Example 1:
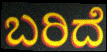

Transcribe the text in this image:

ಬರಿದೆ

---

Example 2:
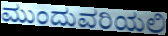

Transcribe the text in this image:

ಮುಂದುವರಿಯಲಿ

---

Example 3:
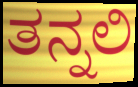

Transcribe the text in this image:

ತನ್ನಲಿ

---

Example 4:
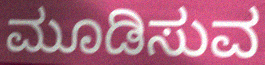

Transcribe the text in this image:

ಮೂಡಿಸುವ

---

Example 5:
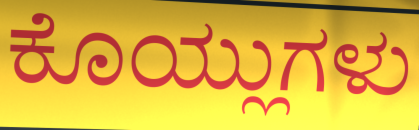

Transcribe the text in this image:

ಕೊಯ್ಲುಗಳು